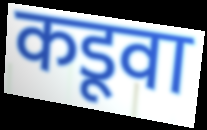
कडूवा